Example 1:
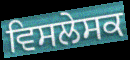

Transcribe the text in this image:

ਵਿਸਲੇਸਕ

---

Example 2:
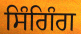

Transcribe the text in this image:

ਸਿੰਗਿੰਗ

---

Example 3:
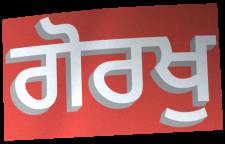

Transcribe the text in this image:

ਗੋਰਖੁ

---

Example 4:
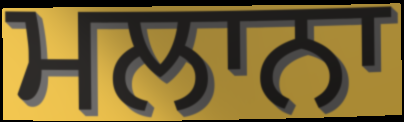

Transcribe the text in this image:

ਮਲਾਨਾ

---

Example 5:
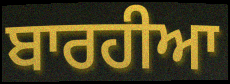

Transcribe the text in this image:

ਬਾਰਹੀਆ